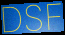
DSF